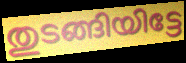
തുടങ്ങിയിട്ടേ